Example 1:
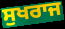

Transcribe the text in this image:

ਸੁਖਰਾਜ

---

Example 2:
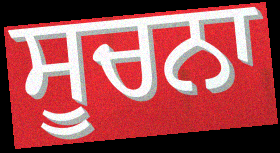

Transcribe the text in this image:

ਸੂਚਨਾ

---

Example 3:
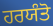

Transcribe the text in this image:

ਹਰਯੰਤੋ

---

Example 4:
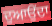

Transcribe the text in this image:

ਦੁਆਉਂਦਾ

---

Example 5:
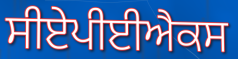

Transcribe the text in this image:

ਸੀਏਪੀਈਐਕਸ